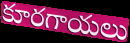
కూరగాయలు